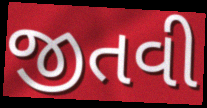
જીતવી